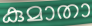
കുമാതാ